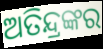
ଅତିନ୍ଦ୍ରଙ୍କର